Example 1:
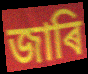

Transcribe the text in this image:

জাৰি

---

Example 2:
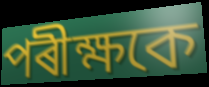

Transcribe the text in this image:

পৰীক্ষকে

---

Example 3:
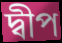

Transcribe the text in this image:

দ্বীপ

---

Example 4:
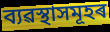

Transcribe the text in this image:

ব্যৱস্থাসমূহৰ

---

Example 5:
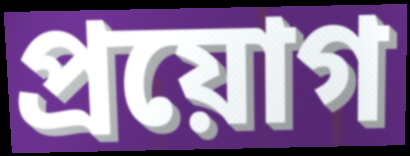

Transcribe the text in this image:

প্ৰয়োগ